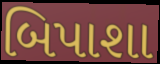
બિપાશા